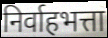
निर्वाहभत्ता